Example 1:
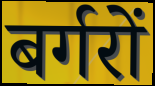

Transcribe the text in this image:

बर्गरों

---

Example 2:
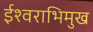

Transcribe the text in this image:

ईश्वराभिमुख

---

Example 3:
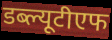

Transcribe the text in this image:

डब्ल्यूटीएफ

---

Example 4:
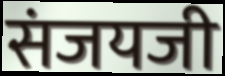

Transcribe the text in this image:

संजयजी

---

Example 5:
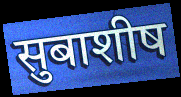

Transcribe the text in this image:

सुबाशीष